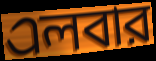
এলবার